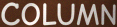
COLUMN